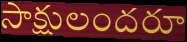
సాక్షులందరూ